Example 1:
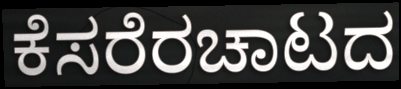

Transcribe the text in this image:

ಕೆಸರೆರಚಾಟದ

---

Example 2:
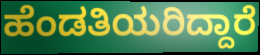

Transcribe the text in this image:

ಹೆಂಡತಿಯರಿದ್ದಾರೆ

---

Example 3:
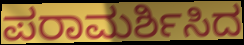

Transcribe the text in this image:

ಪರಾಮರ್ಶಿಸಿದ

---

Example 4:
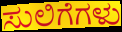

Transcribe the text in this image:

ಸುಲಿಗೆಗಳು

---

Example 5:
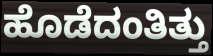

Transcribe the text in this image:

ಹೊಡೆದಂತಿತ್ತು